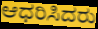
ಆಧರಿಸಿದರು